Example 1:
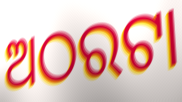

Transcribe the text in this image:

ଅଠରଟା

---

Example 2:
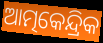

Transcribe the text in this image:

ଆତ୍ମକେନ୍ଦ୍ରିକ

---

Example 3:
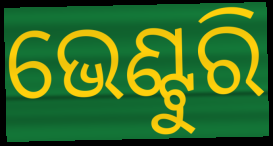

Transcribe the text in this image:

ଭେଣ୍ଟୁରି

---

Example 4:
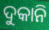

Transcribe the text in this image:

ଦୁକାନି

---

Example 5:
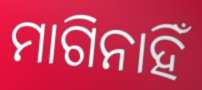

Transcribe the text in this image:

ମାଗିନାହିଁ